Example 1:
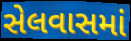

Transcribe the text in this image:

સેલવાસમાં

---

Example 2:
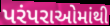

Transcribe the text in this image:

પરંપરાઓમાંથી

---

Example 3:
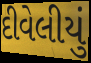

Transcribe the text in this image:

દીવેલીયું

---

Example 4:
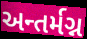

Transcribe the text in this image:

અન્તર્મગ્ન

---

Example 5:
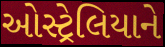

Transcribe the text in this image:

ઓસ્ટ્રેલિયાને